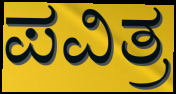
ಪವಿತ್ರ